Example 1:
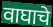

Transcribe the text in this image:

वाघाचे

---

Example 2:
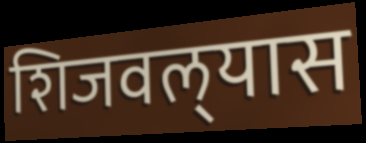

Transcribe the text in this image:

शिजवल्यास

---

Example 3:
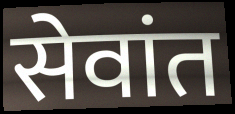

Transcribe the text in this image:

सेवांत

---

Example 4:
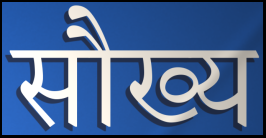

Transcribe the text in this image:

सौख्य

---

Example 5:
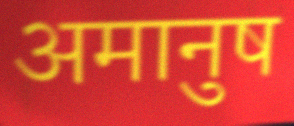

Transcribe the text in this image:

अमानुष